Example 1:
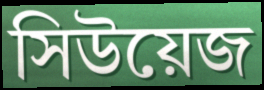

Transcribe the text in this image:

সিউয়েজ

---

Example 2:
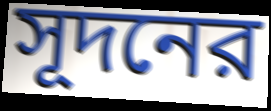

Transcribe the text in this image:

সূদনের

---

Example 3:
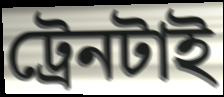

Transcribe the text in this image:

ট্রেনটাই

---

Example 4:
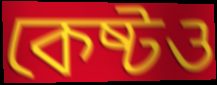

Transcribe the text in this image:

কেষ্টও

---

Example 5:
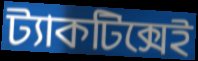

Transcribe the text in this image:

ট্যাকটিক্সেই